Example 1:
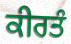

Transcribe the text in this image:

ਕੀਰਤੰ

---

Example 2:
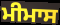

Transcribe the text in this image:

ਮੀਮਾਸ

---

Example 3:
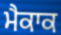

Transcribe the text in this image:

ਮੈਕਾਕ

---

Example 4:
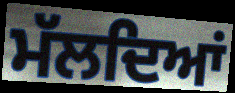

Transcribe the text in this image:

ਮੱਲਦਿਆਂ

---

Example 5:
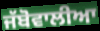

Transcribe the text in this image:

ਜੱਬੋਵਾਲੀਆ